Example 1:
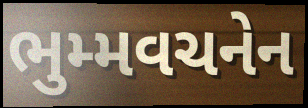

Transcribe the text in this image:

ભુમ્મવચનેન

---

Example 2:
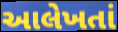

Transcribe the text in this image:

આલેખતાં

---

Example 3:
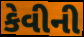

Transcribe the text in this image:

કેવીની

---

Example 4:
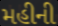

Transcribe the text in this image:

મહીની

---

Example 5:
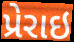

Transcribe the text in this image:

પ્રેરાઇ